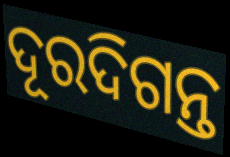
ଦୂରଦିଗନ୍ତ